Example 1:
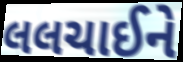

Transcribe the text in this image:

લલચાઈને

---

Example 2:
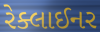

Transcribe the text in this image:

રેક્લાઈનર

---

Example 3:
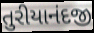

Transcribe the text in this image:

તુરીયાનંદજી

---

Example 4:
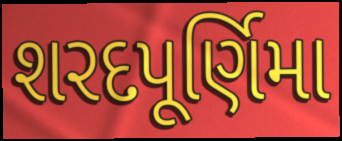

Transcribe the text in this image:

શરદપૂર્ણિમા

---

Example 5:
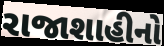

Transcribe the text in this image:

રાજાશાહીનો